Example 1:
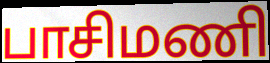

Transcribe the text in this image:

பாசிமணி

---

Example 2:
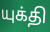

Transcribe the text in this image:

யுக்தி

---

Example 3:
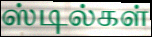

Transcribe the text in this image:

ஸ்டில்கள்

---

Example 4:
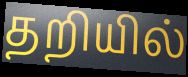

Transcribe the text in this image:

தறியில்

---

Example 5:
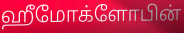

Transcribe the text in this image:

ஹீமோக்ளோபின்